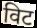
विट